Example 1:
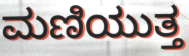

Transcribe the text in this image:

ಮಣಿಯುತ್ತ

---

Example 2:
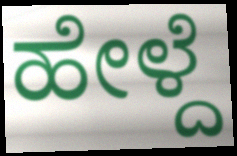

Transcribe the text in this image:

ಹೇಳ್ದೆ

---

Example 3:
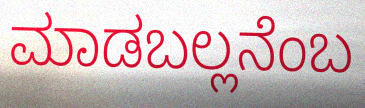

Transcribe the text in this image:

ಮಾಡಬಲ್ಲನೆಂಬ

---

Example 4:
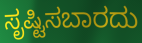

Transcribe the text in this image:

ಸೃಷ್ಟಿಸಬಾರದು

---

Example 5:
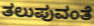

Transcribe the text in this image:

ತಲುಪುವಂತೆ